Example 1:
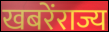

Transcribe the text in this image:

खबरेंराज्य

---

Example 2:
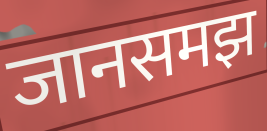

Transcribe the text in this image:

जानसमझ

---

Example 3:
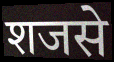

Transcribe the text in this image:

शजसे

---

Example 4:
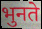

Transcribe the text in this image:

भुनते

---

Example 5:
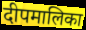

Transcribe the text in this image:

दीपमालिका